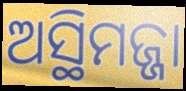
ଅସ୍ଥିମଜ୍ଜା